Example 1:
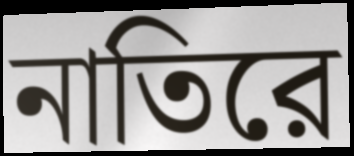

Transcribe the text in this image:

নাতিরে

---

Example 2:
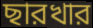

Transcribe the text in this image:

ছারখার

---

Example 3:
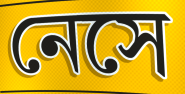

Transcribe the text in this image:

নেসে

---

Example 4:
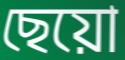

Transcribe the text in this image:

ছেয়ো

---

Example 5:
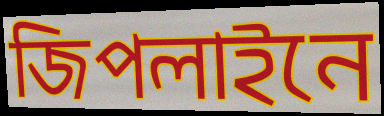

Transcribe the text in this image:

জিপলাইনে